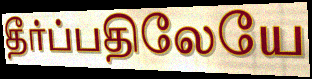
தீர்ப்பதிலேயே